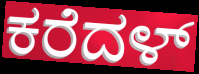
ಕರೆದಳ್